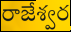
రాజేశ్వర